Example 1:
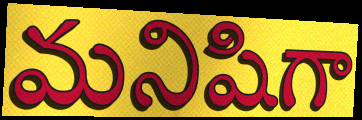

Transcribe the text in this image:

మనిషిగా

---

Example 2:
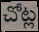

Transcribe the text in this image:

చోట్ల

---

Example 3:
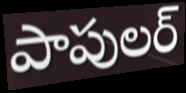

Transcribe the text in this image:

పాపులర్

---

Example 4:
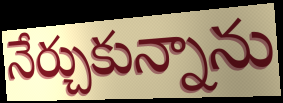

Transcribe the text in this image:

నేర్చుకున్నాను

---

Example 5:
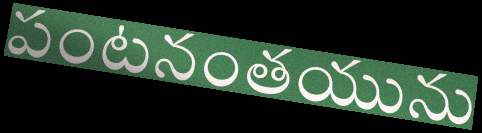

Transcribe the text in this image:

పంటనంతయును